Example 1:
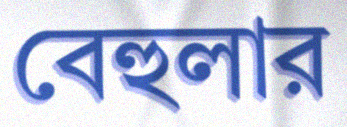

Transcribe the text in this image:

বেহুলার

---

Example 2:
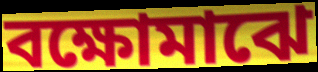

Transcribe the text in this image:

বক্ষোমাঝে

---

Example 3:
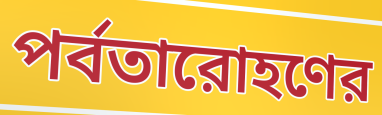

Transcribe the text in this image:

পর্বতারোহণের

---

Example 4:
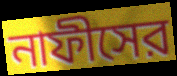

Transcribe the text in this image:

নাফীসের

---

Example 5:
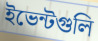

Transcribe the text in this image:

ইভেন্টগুলি